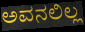
ಅವನಲಿಲ್ಲ